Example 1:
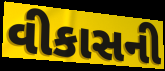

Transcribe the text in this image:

વીકાસની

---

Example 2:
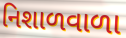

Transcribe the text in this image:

નિશાળવાળા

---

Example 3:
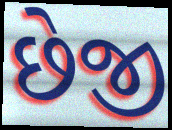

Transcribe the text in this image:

છેજી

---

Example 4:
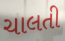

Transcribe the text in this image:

ચાલતી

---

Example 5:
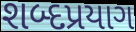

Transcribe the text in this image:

શબ્દપ્રયાગ